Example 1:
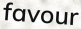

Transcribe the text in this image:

favour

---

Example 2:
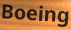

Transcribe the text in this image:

Boeing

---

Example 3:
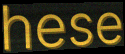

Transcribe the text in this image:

hese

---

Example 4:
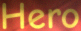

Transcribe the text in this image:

Hero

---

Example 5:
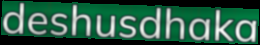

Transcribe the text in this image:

deshusdhaka